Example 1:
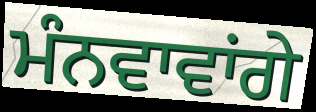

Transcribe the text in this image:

ਮੰਨਵਾਵਾਂਗੇ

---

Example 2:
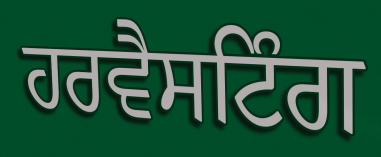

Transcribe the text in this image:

ਹਰਵੈਸਟਿੰਗ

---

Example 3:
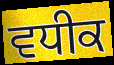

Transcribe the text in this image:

ਵਧੀਕ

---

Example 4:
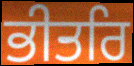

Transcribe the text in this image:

ਭੀਤਰਿ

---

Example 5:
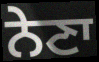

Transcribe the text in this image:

ਨੇਣਾ